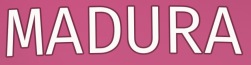
MADURA